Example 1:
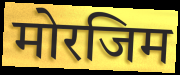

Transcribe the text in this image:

मोरजिम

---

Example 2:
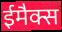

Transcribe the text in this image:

ईमैक्स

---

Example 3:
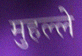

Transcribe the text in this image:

मुहल्ले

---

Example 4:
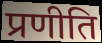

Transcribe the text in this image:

प्रणीति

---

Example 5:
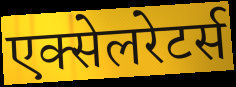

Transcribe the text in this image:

एक्सेलरेटर्स